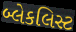
બ્લેકલિસ્ટ